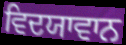
ਵਿਦਯਾਵਾਨ